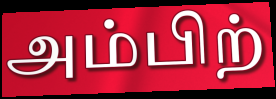
அம்பிற்